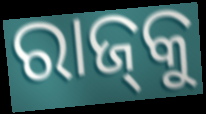
ରାଜ୍‍କୁ